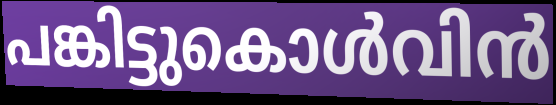
പങ്കിട്ടുകൊൾവിൻ